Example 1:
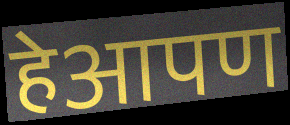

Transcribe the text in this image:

हेआपण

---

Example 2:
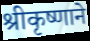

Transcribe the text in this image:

श्रीकृष्णाने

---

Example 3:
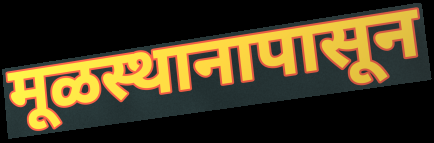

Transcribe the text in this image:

मूळस्थानापासून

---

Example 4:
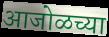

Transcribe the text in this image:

आजोळच्या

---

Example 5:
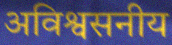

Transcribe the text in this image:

अविश्वसनीय